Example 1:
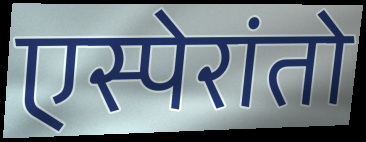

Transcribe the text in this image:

एस्पेरांतो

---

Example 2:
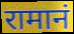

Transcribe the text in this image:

रामानं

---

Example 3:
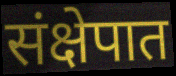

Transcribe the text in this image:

संक्षेपात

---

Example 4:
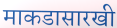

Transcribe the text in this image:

माकडासारखी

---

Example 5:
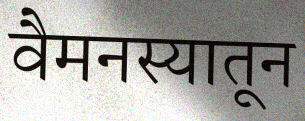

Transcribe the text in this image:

वैमनस्यातून